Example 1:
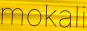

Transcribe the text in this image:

mokali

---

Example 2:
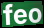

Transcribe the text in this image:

feo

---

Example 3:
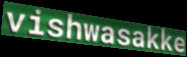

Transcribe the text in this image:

vishwasakke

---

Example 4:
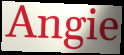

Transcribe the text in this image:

Angie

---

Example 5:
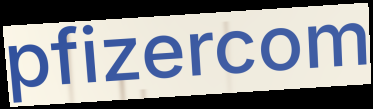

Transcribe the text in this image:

pfizercom